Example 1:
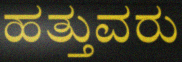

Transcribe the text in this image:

ಹತ್ತುವರು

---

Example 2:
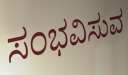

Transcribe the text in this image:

ಸಂಭವಿಸುವ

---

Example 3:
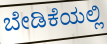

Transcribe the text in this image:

ಬೇಡಿಕೆಯಲ್ಲಿ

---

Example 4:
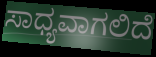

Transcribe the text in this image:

ಸಾಧ್ಯವಾಗಲಿದೆ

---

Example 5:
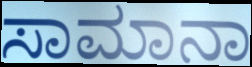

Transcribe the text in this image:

ಸಾಮಾನಾ